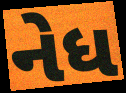
નેધ